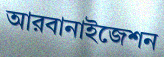
আরবানাইজেশন